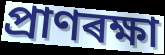
প্ৰাণৰক্ষা